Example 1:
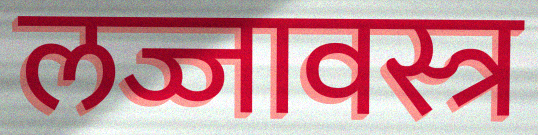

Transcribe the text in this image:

लज्जावस्त्र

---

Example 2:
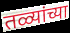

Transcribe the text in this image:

तळ्यांच्या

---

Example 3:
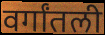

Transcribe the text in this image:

वर्गांतली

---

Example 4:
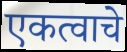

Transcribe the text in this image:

एकत्वाचे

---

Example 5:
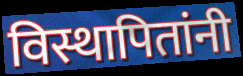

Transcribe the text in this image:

विस्थापितांनी